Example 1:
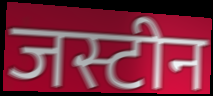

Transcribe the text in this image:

जस्टीन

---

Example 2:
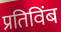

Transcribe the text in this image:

प्रतिविंब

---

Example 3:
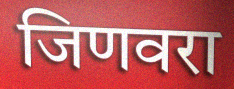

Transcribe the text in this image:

जिणवरा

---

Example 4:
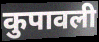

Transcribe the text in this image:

कुपावली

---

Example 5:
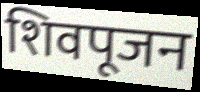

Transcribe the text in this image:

शिवपूजन